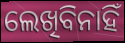
ଲେଖିବିନାହିଁ